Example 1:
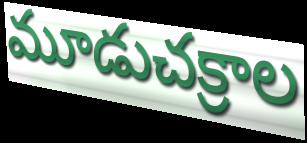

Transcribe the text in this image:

మూడుచక్రాల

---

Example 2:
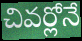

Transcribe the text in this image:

చివర్లోనే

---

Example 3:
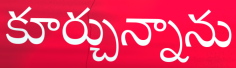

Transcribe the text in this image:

కూర్చున్నాను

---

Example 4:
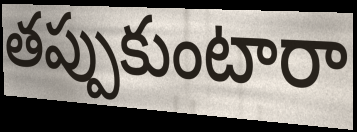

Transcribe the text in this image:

తప్పుకుంటారా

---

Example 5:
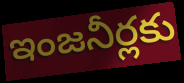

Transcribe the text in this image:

ఇంజనీర్లకు